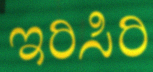
ಇರಿಸಿರಿ